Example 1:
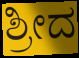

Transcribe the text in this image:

ಶ್ರೀದ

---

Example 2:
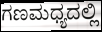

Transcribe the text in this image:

ಗಣಮಧ್ಯದಲ್ಲಿ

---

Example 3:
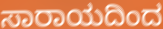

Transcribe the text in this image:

ಸಾರಾಯದಿಂದ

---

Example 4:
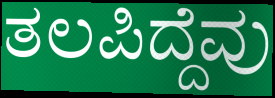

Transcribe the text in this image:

ತಲಪಿದ್ದೆವು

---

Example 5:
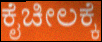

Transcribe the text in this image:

ಕೈಚೀಲಕ್ಕೆ